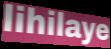
lihilaye